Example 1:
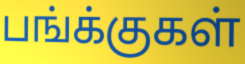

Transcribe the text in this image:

பங்க்குகள்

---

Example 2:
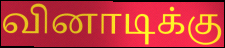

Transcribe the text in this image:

வினாடிக்கு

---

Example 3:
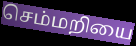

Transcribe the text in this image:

செம்மறியை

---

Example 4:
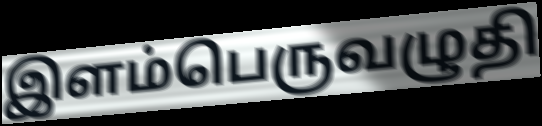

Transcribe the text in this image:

இளம்பெருவழுதி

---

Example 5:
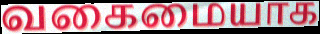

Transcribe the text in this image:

வகைமையாக